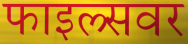
फाइल्सवर